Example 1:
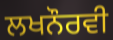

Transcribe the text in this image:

ਲਖਨੌਰਵੀ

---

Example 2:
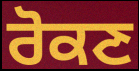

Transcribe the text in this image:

ਰੋਕਣ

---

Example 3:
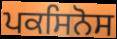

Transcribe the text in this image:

ਪਕਸਿਨੋਸ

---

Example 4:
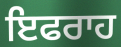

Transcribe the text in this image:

ਇਫਰਾਹ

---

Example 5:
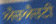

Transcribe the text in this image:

ਐਚਐਚਟੀ